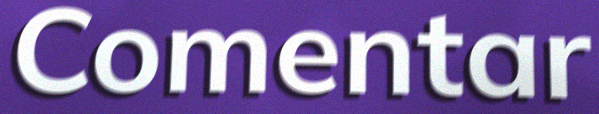
Comentar